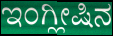
ಇಂಗ್ಲೀಷಿನ